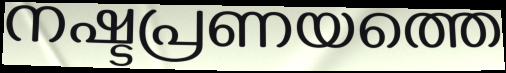
നഷ്ടപ്രണയത്തെ